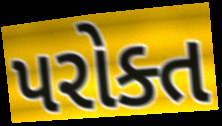
પરોક્ત